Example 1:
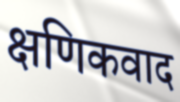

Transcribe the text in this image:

क्षणिकवाद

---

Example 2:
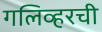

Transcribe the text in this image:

गलिव्हरची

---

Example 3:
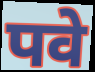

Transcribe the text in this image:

पवे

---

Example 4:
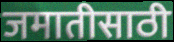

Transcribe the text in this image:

जमातीसाठी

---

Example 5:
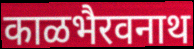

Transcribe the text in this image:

काळभैरवनाथ